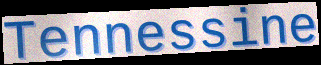
Tennessine